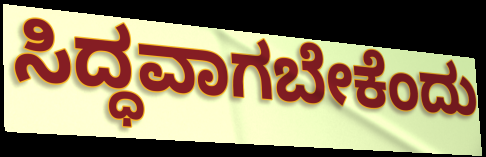
ಸಿದ್ಧವಾಗಬೇಕೆಂದು